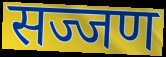
सज्जण